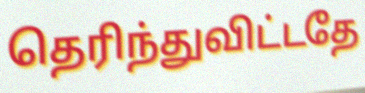
தெரிந்துவிட்டதே